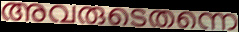
അവരുടെതന്നെ